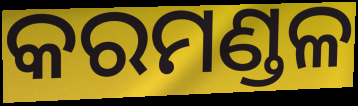
କରମଣ୍ଡଳ